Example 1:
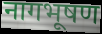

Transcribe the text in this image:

नागभूषण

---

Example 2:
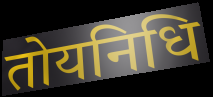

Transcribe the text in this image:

तोयनिधि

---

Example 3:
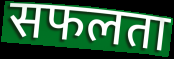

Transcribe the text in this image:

सफलता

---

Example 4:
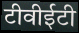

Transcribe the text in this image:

टीवीईटी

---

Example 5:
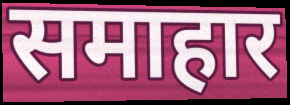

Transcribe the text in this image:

समाहार